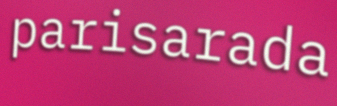
parisarada